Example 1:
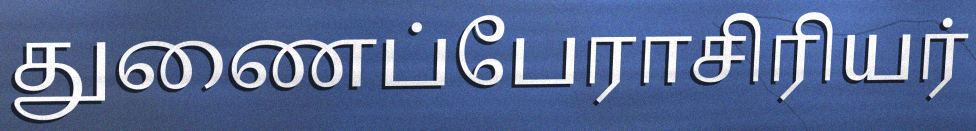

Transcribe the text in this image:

துணைப்பேராசிரியர்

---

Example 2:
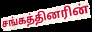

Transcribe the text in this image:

சங்கத்தினரின்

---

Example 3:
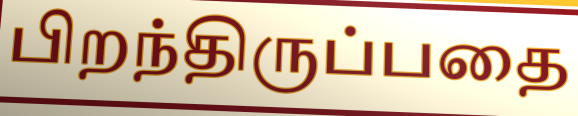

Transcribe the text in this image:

பிறந்திருப்பதை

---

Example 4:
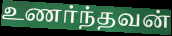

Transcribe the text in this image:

உணர்ந்தவன்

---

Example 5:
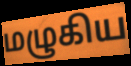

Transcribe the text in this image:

மழுகிய